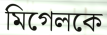
মিগেলকে